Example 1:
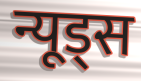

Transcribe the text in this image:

न्यूड्स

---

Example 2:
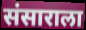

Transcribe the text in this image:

संसाराला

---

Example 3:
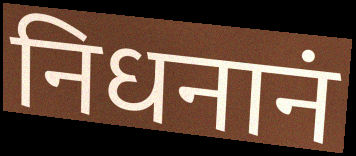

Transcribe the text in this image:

निधनानं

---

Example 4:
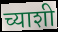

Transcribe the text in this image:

च्याशी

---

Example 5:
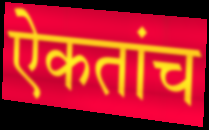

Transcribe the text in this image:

ऐकतांच